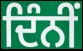
ਦਿੰਨੀਂ